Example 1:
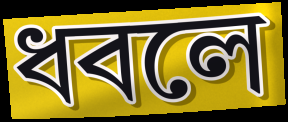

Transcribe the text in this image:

ধবলে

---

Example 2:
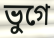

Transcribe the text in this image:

ভুগে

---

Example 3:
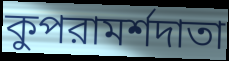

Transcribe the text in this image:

কুপরামর্শদাতা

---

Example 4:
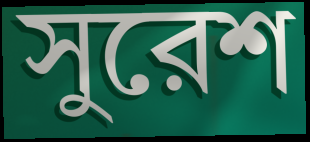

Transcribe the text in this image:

সুরেশ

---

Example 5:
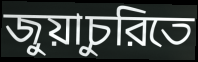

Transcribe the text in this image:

জুয়াচুরিতে